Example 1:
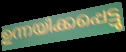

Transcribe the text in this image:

ഉന്നയിക്കപ്പെട്ടു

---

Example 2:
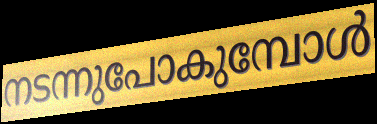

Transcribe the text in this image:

നടന്നുപോകുമ്പോൾ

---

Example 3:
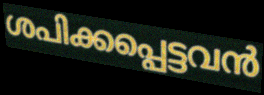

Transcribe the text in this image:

ശപിക്കപ്പെട്ടവൻ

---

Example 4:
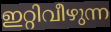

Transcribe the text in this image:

ഇറ്റിവീഴുന്ന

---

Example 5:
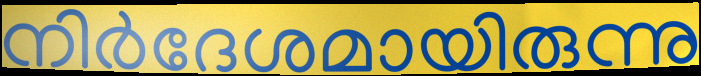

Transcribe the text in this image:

നിർദേശമായിരുന്നു